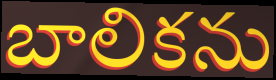
బాలికను